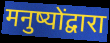
मनुष्योंद्वारा